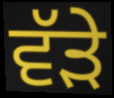
ਵੱਡ਼ੇ